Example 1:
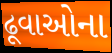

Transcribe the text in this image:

ઢૂવાઓના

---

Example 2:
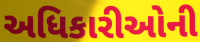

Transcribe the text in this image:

અધિકારીઓની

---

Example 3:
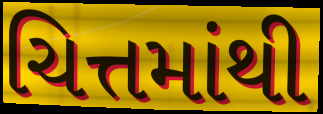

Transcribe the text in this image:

ચિત્તમાંથી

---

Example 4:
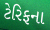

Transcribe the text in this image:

ટેરિફના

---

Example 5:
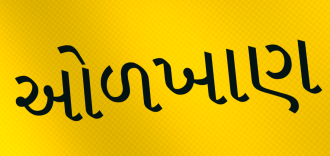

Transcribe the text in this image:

ઓળખાણ